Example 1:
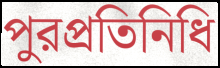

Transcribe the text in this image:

পুরপ্রতিনিধি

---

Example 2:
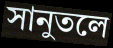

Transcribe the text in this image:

সানুতলে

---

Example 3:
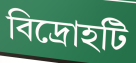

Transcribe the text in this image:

বিদ্রোহটি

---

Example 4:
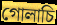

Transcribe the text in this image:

গোলাচি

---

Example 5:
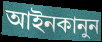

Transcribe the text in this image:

আইনকানুন